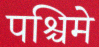
पश्चिमे